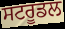
ਸਟਰੂਡਲ